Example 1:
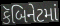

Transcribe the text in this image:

કૅબિનેટમાં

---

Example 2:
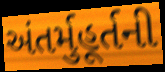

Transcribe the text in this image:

અંતર્મુહૂર્તની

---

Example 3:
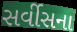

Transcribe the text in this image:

સર્વીસના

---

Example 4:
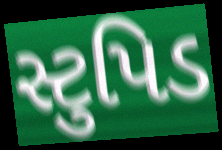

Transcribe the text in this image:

સ્ટુપિડ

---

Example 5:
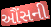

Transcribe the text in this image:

ઔંસની